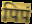
पिपं